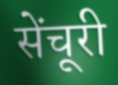
सेंचूरी